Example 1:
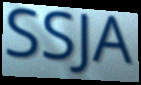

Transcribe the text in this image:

SSJA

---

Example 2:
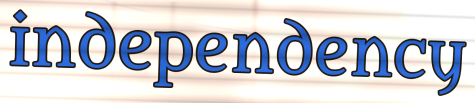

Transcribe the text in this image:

independency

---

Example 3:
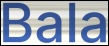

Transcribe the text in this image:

Bala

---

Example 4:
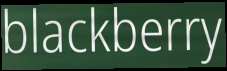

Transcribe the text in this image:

blackberry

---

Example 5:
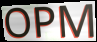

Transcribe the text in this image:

OPM